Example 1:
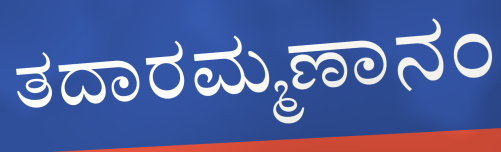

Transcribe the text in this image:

ತದಾರಮ್ಮಣಾನಂ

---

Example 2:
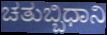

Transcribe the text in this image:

ಚತುಬ್ಬಿಧಾನಿ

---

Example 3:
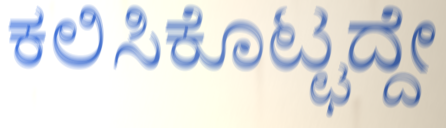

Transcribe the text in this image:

ಕಲಿಸಿಕೊಟ್ಟದ್ದೇ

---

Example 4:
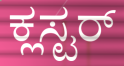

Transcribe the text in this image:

ಕ್ಲಸ್ಟರ್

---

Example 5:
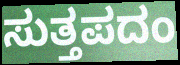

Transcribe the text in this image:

ಸುತ್ತಪದಂ